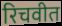
रिचवीत